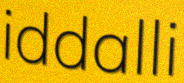
iddalli